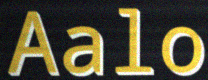
Aalo